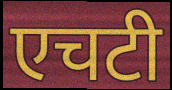
एचटी